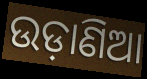
ଉଡ଼ାଣିଆ